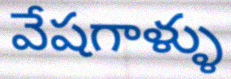
వేషగాళ్ళు